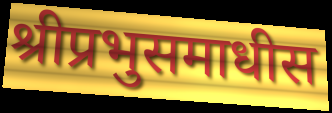
श्रीप्रभुसमाधीस